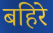
बहिरे